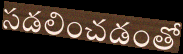
సడలించడంతో